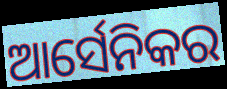
ଆର୍ସେନିକର